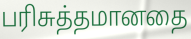
பரிசுத்தமானதை